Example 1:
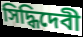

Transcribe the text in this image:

সিদ্ধিদেবী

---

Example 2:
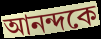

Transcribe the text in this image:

আনন্দকে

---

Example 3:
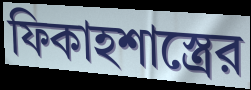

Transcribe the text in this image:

ফিকাহশাস্ত্রের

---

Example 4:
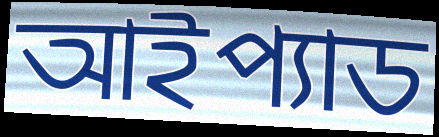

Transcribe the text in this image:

আইপ্যাড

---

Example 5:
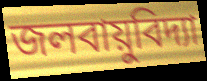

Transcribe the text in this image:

জলবায়ুবিদ্যা